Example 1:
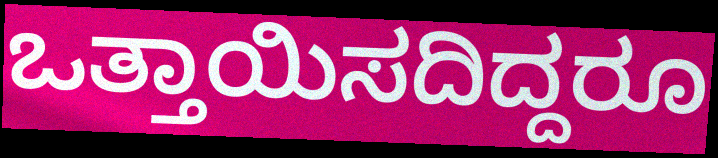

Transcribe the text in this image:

ಒತ್ತಾಯಿಸದಿದ್ದರೂ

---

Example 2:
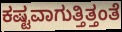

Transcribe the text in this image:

ಕಷ್ಟವಾಗುತ್ತಿತ್ತಂತೆ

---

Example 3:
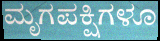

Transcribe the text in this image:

ಮೃಗಪಕ್ಷಿಗಳೂ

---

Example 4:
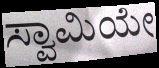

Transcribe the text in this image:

ಸ್ವಾಮಿಯೇ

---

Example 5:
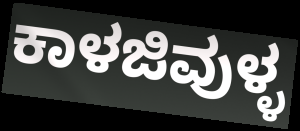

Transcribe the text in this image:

ಕಾಳಜಿವುಳ್ಳ